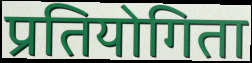
प्रतियोगिता